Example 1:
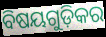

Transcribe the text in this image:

ବିଷୟଗୁଡ଼ିକର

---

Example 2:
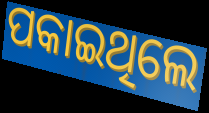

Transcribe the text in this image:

ପକାଇଥିଲେ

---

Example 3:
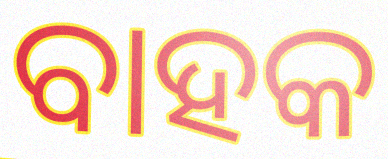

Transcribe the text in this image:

ବାହକ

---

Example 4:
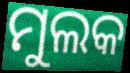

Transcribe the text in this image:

ମୁଲକ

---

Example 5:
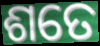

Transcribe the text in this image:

ଶତେ